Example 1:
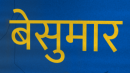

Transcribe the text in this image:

बेसुमार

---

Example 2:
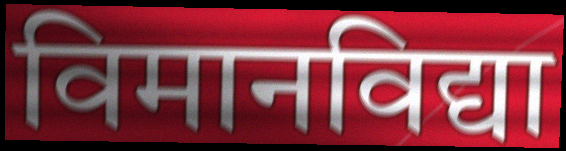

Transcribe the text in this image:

विमानविद्या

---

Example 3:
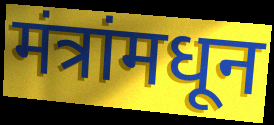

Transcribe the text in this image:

मंत्रांमधून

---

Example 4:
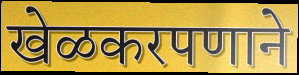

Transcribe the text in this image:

खेळकरपणाने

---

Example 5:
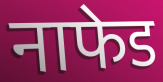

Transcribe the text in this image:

नाफेड